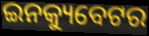
ଇନକ୍ୟୁବେଟର